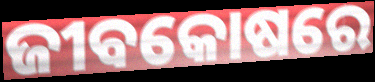
ଜୀବକୋଷରେ